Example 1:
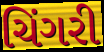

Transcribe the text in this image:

ચિંગરી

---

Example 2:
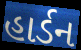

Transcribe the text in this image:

હાર્ડન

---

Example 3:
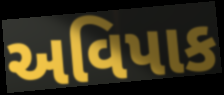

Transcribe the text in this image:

અવિપાક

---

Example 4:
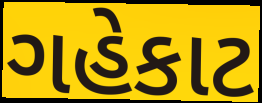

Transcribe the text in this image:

ગહેકાટ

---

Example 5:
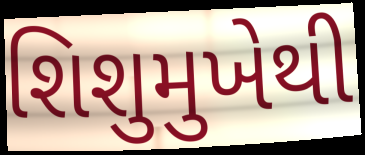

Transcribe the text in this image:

શિશુમુખેથી